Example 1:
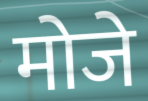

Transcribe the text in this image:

मोजे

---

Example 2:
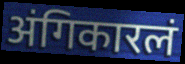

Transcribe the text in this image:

अंगिकारलं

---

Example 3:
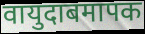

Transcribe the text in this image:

वायुदाबमापक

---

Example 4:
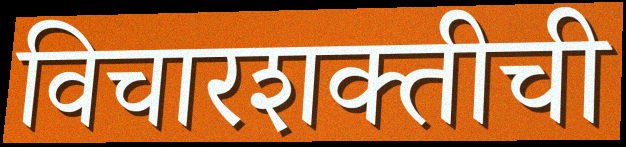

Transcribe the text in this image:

विचारशक्तीची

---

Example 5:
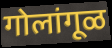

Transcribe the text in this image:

गोलांगूळ